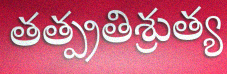
తత్ప్రతిశ్రుత్య